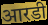
आरडी